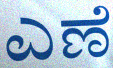
ಎಣೆ